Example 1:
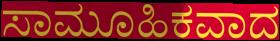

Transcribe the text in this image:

ಸಾಮೂಹಿಕವಾದ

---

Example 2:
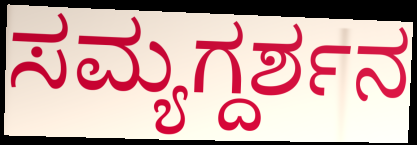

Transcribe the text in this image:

ಸಮ್ಯಗ್ದರ್ಶನ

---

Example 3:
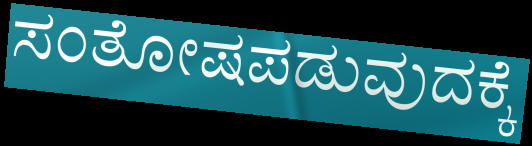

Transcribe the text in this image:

ಸಂತೋಷಪಡುವುದಕ್ಕೆ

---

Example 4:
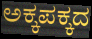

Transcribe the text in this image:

ಅಕ್ಕಪಕ್ಕದ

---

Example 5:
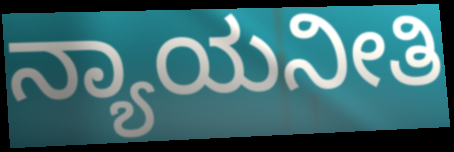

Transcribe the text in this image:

ನ್ಯಾಯನೀತಿ